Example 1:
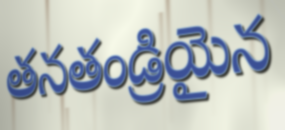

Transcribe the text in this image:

తనతండ్రియైన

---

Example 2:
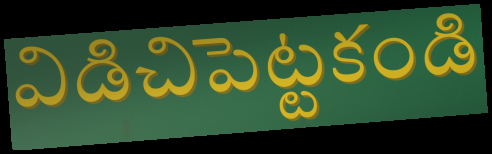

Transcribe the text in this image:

విడిచిపెట్టకండి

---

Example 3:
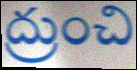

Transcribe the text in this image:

ద్రుంచి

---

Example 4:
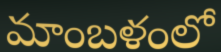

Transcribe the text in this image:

మాంబళంలో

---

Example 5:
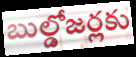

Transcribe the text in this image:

బుల్డోజర్లకు